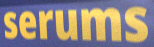
serums